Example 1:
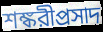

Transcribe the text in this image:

শঙ্করীপ্রসাদ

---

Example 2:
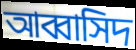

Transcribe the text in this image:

আব্বাসিদ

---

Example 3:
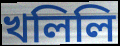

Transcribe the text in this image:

খলিলি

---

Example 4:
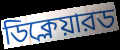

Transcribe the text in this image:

ডিক্লেয়ারড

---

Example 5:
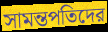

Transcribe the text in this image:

সামন্তপতিদের